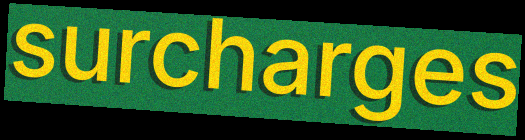
surcharges